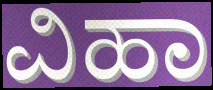
ವಿಹಾ